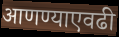
आणण्याएवढी